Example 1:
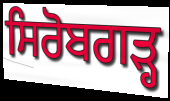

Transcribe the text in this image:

ਸਿਰੋਬਗੜ੍ਹ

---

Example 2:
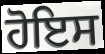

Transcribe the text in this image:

ਹੋਇਸ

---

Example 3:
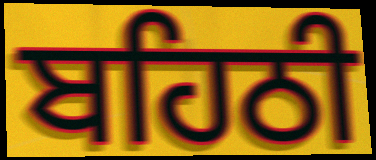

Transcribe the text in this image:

ਬਹਿਠੀ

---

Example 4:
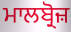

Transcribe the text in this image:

ਮਾਲਬ੍ਰੋਜ਼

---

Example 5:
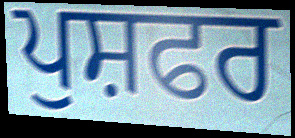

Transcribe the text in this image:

ਪੁਸ਼ਫਰ